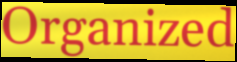
Organized